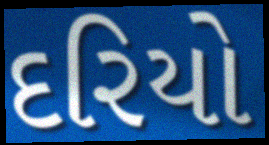
દરિયો